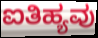
ಐತಿಹ್ಯವು